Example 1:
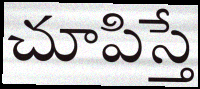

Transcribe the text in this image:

చూపిస్తే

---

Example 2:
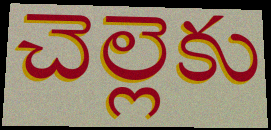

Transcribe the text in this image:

చెల్లెకు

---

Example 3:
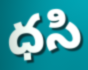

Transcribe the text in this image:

ధసి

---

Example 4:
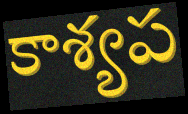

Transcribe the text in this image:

కాశ్యప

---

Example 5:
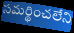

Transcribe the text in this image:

సమర్థించలేని